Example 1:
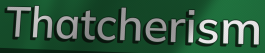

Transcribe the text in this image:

Thatcherism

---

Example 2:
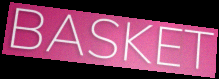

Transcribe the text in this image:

BASKET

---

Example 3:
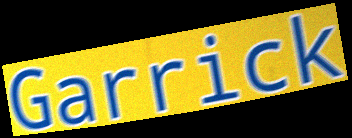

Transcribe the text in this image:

Garrick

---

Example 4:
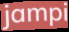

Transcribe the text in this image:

jampi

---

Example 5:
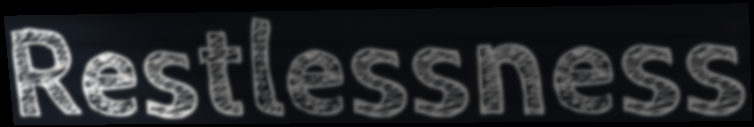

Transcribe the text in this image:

Restlessness